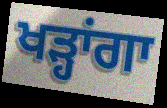
ਖੜ੍ਹਾਂਗਾ